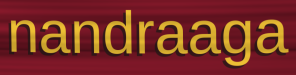
nandraaga